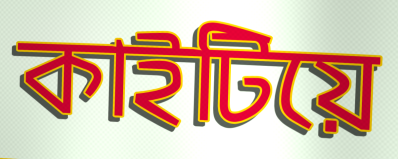
কাইটিয়ে